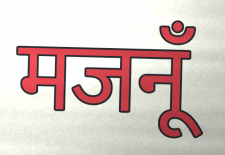
मजनूँ